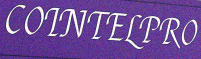
COINTELPRO